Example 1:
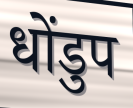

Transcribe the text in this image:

धोंडुप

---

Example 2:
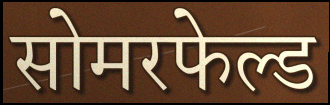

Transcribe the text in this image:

सोमरफेल्ड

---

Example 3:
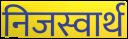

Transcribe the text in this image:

निजस्वार्थ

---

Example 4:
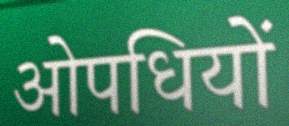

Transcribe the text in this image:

ओपधियों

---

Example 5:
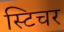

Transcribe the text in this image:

स्टिचर